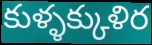
కుళ్ళక్కుళిర